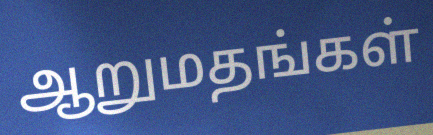
ஆறுமதங்கள்